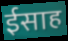
ईसाह